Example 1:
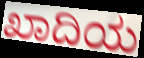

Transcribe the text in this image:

ಖಾದಿಯ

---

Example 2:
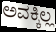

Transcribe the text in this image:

ಅವಕ್ಕಿಲ್ಲ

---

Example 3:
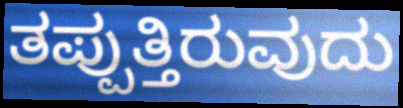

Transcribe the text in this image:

ತಪ್ಪುತ್ತಿರುವುದು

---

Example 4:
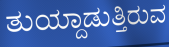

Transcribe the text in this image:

ತುಯ್ದಾಡುತ್ತಿರುವ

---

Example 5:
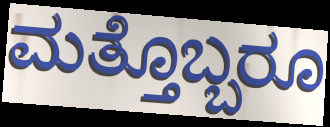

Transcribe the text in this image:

ಮತ್ತೊಬ್ಬರೂ